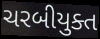
ચરબીયુક્ત